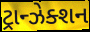
ટ્રાન્ઝેક્શન